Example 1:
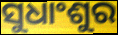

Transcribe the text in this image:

ସୁଧାଂଶୁର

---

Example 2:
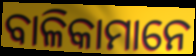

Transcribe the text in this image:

ବାଳିକାମାନେ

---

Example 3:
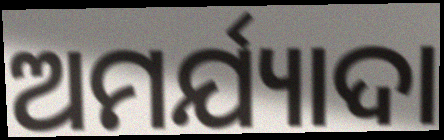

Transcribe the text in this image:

ଅମର୍ଯ୍ୟାଦା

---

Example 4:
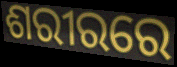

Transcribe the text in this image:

ଶରୀରରେ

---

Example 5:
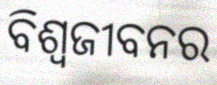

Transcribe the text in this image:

ବିଶ୍ଵଜୀବନର